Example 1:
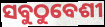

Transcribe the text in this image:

ସବୁଠୁବେଶୀ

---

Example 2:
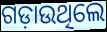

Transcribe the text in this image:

ଗଡ଼ାଉଥିଲେ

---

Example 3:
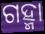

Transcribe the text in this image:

ଗହ୍ମା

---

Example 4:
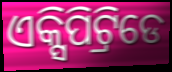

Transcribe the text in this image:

ଏକ୍ସିପିଟ୍ରିଡେ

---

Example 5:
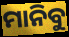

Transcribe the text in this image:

ମାନିବୁ